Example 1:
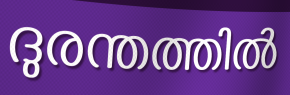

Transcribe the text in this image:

ദുരന്തത്തിൽ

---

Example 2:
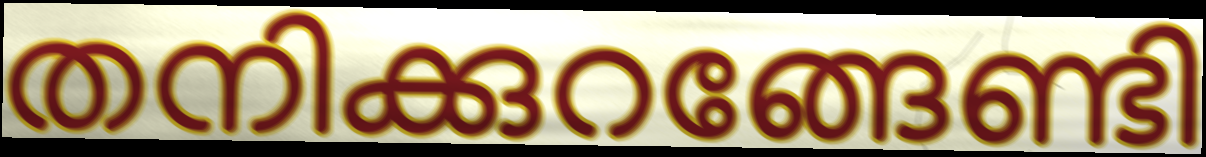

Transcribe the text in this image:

തനിക്കുറങ്ങേണ്ടി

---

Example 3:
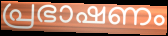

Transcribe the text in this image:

പ്രഭാഷണം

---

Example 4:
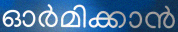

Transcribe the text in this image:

ഓർമിക്കാൻ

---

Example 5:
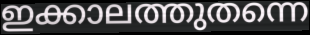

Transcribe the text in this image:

ഇക്കാലത്തുതന്നെ